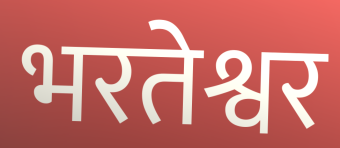
भरतेश्वर